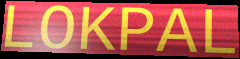
LOKPAL